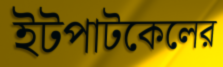
ইটপাটকেলের